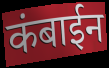
कंबाईन